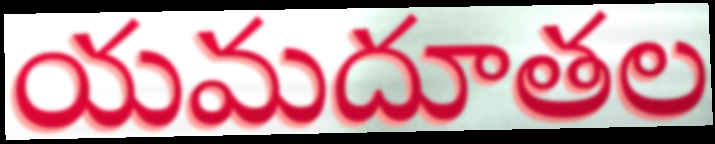
యమదూతల